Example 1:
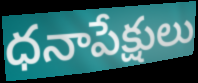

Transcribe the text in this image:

ధనాపేక్షులు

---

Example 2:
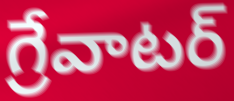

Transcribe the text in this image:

గ్రేవాటర్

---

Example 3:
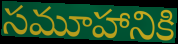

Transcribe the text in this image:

సమూహానికి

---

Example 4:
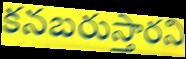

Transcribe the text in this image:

కనబరుస్తారని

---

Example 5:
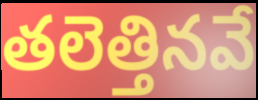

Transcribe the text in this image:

తలెత్తినవే